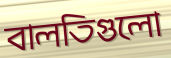
বালতিগুলো